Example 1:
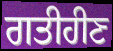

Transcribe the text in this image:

ਗਤੀਹੀਣ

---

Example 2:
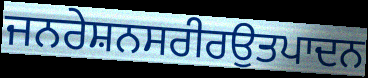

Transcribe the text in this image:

ਜਨਰੇਸ਼ਨਸਰੀਰਉਤਪਾਦਨ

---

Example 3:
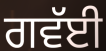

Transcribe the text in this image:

ਗਵੱਈ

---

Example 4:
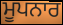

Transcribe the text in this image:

ਮੂਪਨਾਰ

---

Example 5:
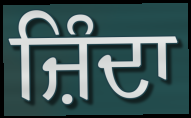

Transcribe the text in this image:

ਜ਼ਿੰਦਾ